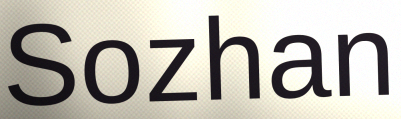
Sozhan